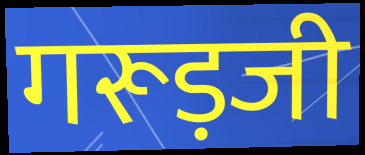
गरूड़जी